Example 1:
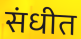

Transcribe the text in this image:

संधीत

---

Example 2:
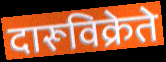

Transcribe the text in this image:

दारूविक्रेते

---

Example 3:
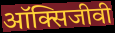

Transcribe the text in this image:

ऑक्सिजीवी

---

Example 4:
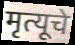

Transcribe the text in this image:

मृत्यूचे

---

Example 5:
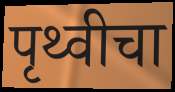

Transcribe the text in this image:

पृथ्वीचा